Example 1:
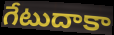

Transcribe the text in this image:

గేటుదాకా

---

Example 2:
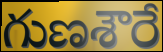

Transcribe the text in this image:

గుణశౌరే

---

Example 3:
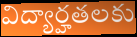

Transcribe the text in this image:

విద్యార్హతలకు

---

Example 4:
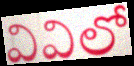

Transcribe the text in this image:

వివిలో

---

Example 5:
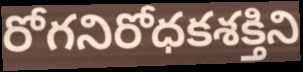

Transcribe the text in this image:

రోగనిరోధకశక్తిని